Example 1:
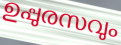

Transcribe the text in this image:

ഉപ്പുരസവും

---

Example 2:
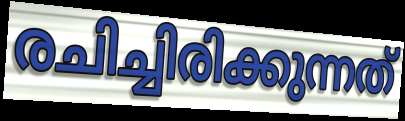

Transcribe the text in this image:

രചിച്ചിരിക്കുന്നത്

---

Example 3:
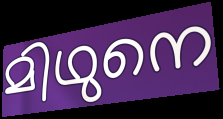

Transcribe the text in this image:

മിഥുനെ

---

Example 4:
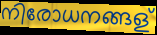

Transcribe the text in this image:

നിരോധനങ്ങള്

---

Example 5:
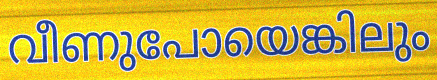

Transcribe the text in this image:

വീണുപോയെങ്കിലും